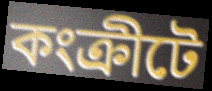
কংক্রীটে